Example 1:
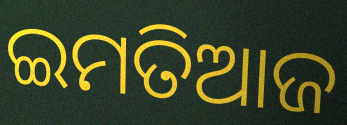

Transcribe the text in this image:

ଇମତିଆଜ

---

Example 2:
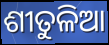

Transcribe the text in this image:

ଶୀତୁଳିଆ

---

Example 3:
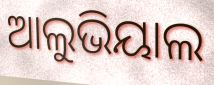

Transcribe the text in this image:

ଆଲୁଭିୟାଲ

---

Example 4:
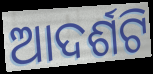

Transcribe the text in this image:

ଆଦର୍ଶଟି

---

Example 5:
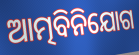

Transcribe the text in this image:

ଆତ୍ମବିନିଯୋଗ